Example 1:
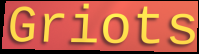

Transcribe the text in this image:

Griots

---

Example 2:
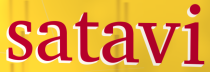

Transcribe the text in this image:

satavi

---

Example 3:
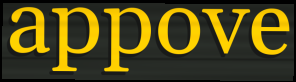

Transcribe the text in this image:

appove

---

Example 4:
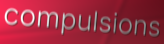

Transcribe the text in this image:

compulsions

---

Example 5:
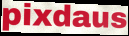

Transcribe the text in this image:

pixdaus